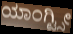
ಯಾಂಗ್ಟ್ಸೀ